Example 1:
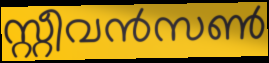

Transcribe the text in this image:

സ്റ്റീവൻസൺ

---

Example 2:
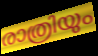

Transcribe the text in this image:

രാത്രിയും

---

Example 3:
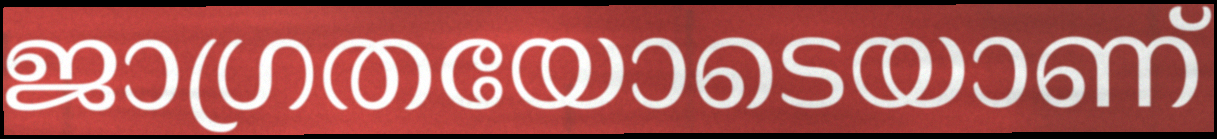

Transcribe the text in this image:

ജാഗ്രതയോടെയാണ്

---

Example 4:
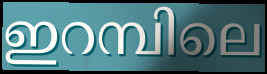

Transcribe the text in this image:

ഇറമ്പിലെ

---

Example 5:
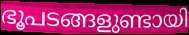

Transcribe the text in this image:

ഭൂപടങ്ങളുണ്ടായി